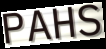
PAHS